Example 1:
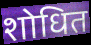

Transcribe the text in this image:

शोधित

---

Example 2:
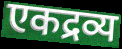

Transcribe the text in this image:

एकद्रव्य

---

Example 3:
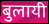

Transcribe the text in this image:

बुलायी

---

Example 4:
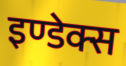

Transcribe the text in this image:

इण्डेक्स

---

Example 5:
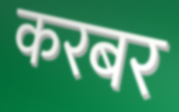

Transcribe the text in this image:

करबर